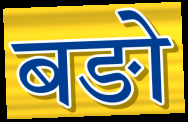
बङो